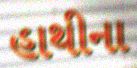
હાથીના